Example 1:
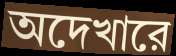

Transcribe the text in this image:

অদেখারে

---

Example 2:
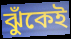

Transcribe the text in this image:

ঝুঁকেই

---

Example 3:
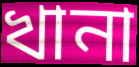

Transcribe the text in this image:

খানা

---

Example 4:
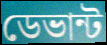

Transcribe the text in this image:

ডেভান্ট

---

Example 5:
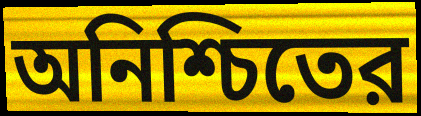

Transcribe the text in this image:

অনিশ্চিতের